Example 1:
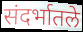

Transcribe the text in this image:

संदर्भातले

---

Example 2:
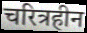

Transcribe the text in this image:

चरित्रहीन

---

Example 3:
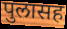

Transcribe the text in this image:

पुलासह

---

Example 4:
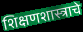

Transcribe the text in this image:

शिक्षणशास्त्राचे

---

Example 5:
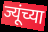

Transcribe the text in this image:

ज्यूंच्या